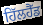
ਹਿੱਲਹੈੱਡ